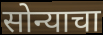
सोन्याचा